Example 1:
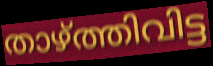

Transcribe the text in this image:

താഴ്ത്തിവിട്ട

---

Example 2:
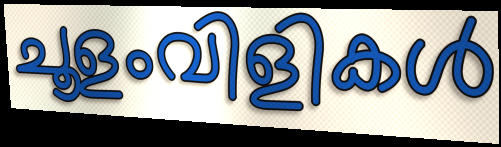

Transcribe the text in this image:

ചൂളംവിളികൾ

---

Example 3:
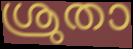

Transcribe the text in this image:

ശ്രുതാ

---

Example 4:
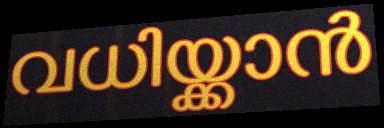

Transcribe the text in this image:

വധിയ്ക്കാൻ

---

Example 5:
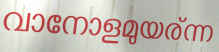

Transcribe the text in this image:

വാനോളമുയര്ന്ന